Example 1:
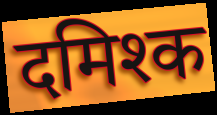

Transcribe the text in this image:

दमिश्क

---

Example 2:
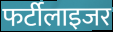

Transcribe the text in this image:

फर्टीलाइजर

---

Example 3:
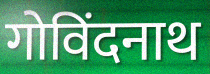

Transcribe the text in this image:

गोविंदनाथ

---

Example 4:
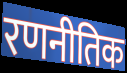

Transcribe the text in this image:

रणनीतिक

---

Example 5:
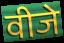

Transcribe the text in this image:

वीजे